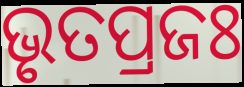
ଭୃତପ୍ରଜଃ